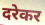
दरेकर